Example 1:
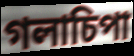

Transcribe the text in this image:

গলাচিপা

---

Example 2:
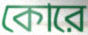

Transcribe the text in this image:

কোরে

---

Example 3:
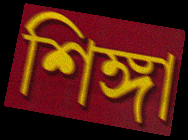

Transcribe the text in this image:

শিঙ্গা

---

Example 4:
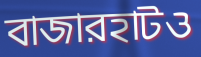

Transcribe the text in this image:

বাজারহাটও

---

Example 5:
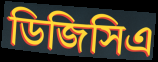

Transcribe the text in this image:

ডিজিসিএ